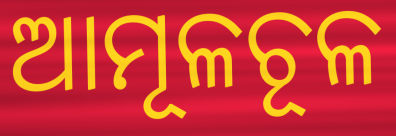
ଆମୂଳଚୂଳ